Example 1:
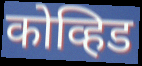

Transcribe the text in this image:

कोव्हिड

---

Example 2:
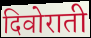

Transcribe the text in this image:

दिवोराती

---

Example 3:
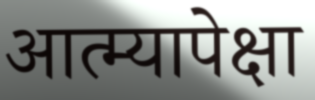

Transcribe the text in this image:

आत्म्यापेक्षा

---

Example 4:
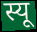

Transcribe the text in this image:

स्यू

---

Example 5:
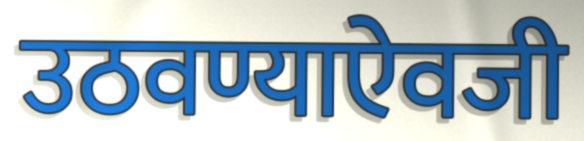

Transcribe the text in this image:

उठवण्याऐवजी